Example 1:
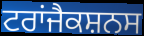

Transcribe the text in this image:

ਟਰਾਂਜੈਕਸ਼ਨਸ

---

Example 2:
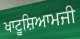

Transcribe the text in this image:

ਖਾਟੂਸ਼ਿਆਮਜੀ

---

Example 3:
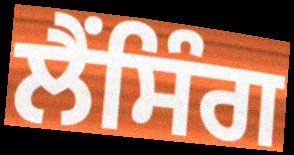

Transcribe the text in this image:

ਲੈਂਸਿੰਗ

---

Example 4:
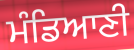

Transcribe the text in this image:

ਮੰਡਿਆਣੀ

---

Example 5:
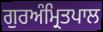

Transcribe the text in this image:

ਗੁਰਅੰਮ੍ਰਿਤਪਾਲ